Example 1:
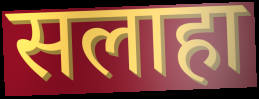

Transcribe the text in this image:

सलाहा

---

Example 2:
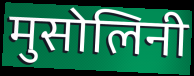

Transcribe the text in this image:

मुसोलिनी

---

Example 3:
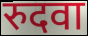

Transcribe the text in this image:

रुदवा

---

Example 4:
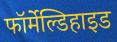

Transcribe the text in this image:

फॉर्मेल्डिहाइड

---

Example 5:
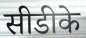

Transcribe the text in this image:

सीडीके